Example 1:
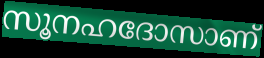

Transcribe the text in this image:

സൂനഹദോസാണ്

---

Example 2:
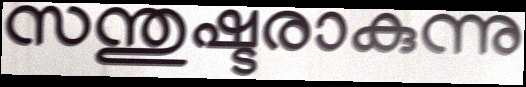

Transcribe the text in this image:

സന്തുഷ്ടരാകുന്നു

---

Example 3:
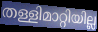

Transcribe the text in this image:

തള്ളിമാറ്റിയില്ല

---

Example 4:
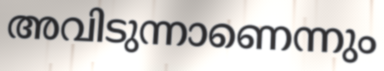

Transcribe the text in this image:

അവിടുന്നാണെന്നും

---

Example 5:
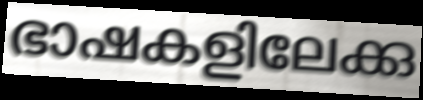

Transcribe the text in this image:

ഭാഷകളിലേക്കു